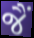
જૈં